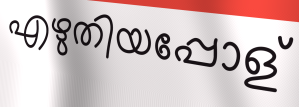
എഴുതിയപ്പോള്